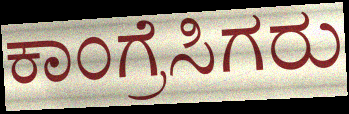
ಕಾಂಗ್ರೆಸಿಗರು